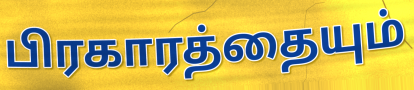
பிரகாரத்தையும்